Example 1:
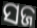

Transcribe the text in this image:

ସଜ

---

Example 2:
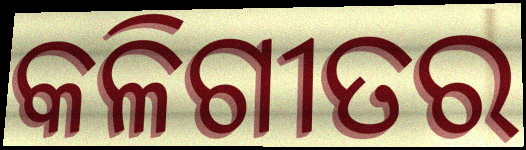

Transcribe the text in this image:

କଳିଗୀତର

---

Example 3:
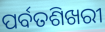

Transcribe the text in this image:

ପର୍ବତଶିଖରୀ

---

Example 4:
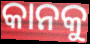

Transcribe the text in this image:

କାନକୁ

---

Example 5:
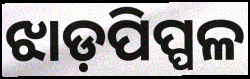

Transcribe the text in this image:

ଝାଡ଼ପିପ୍ପଳ